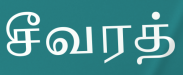
சீவரத்